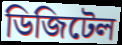
ডিজিটেল